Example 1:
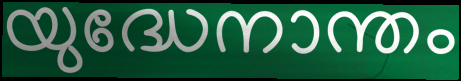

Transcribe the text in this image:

യുദ്ധേനാന്തം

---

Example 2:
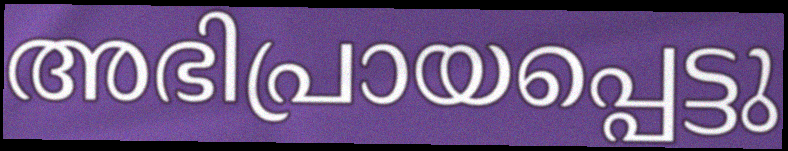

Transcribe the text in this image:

അഭിപ്രായപ്പെട്ടു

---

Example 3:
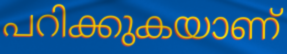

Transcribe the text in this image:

പറിക്കുകയാണ്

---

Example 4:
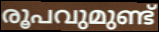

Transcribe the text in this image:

രൂപവുമുണ്ട്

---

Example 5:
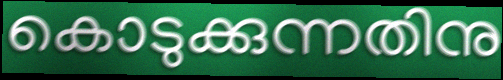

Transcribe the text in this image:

കൊടുക്കുന്നതിനു